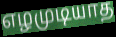
எழமுடியாத